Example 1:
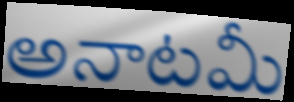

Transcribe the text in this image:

అనాటమీ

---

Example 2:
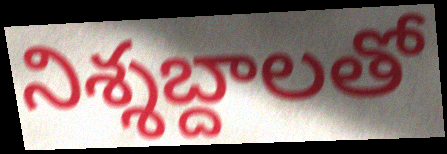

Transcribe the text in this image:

నిశ్శబ్దాలతో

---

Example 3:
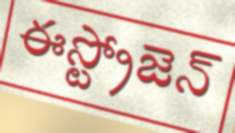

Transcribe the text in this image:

ఈస్ట్రోజెన్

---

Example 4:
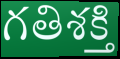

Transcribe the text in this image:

గతిశక్తి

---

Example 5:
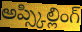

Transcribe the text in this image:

అప్స్కిల్లింగ్